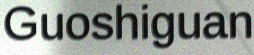
Guoshiguan